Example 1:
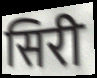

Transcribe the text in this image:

सिरी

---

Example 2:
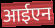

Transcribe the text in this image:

आईएन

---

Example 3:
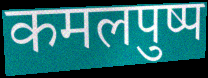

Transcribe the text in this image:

कमलपुष्प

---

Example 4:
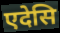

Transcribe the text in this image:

एदेसि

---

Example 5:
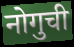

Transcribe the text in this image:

नोगुची